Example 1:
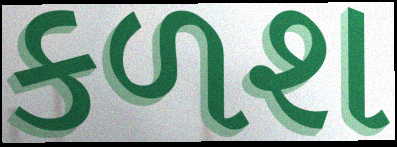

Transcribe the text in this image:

કળશ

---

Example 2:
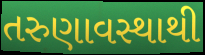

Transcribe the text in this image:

તરુણાવસ્થાથી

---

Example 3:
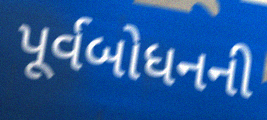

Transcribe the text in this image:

પૂર્વબોધનની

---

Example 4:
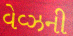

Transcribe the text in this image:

વેવ્ઝની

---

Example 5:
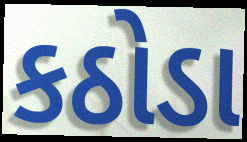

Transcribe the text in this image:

કઠોડા